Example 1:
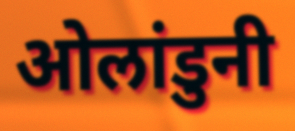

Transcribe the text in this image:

ओलांडुनी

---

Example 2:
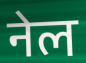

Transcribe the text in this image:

नेल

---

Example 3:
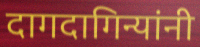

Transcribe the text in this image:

दागदागिन्यांनी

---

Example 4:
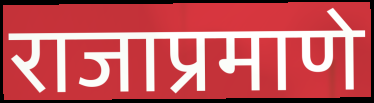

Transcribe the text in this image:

राजाप्रमाणे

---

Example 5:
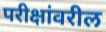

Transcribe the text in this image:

परीक्षांवरील